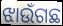
ଝାଉଁଗଛ